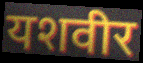
यशवीर